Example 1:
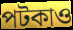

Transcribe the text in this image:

পটকাও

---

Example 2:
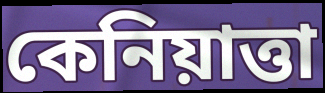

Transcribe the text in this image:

কেনিয়াত্তা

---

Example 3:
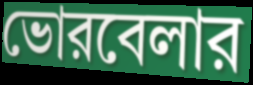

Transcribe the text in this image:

ভোরবেলার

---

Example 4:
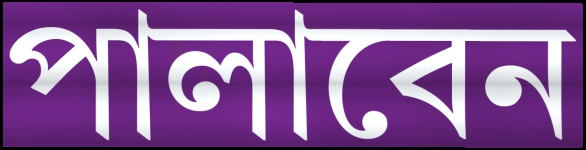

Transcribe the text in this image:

পালাবেন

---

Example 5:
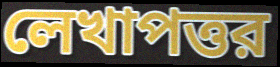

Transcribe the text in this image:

লেখাপত্তর